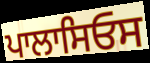
ਪਾਲਾਸਿਓਸ